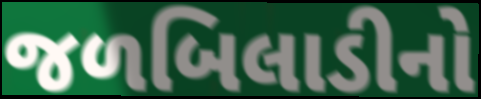
જળબિલાડીનો